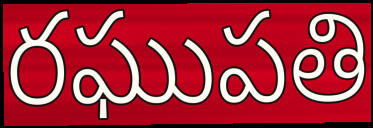
రఘుపతి